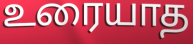
உரையாத